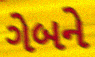
ગેબને